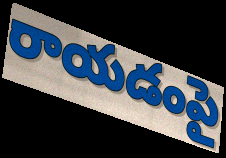
రాయడంపై